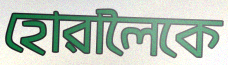
হোৱালৈকে